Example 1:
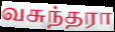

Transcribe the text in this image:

வசுந்தரா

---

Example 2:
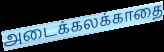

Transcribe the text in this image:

அடைக்கலக்காதை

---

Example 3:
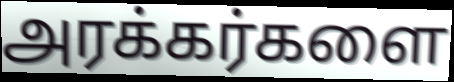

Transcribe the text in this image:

அரக்கர்களை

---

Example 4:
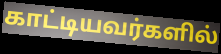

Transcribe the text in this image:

காட்டியவர்களில்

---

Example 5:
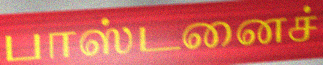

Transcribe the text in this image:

பாஸ்டனைச்